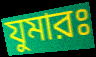
যুমারঃ